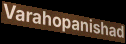
Varahopanishad